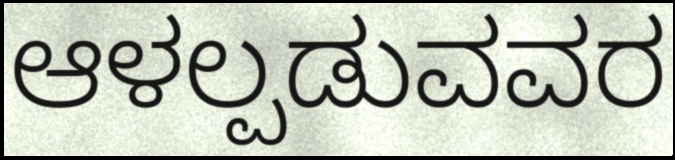
ಆಳಲ್ಪಡುವವರ